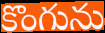
కొంగును